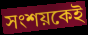
সংশয়কেই